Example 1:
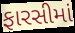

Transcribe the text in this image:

ફારસીમાં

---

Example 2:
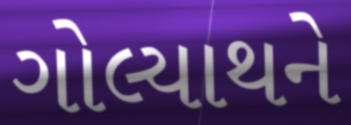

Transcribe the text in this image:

ગોલ્યાથને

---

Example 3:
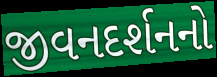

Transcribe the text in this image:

જીવનદર્શનનો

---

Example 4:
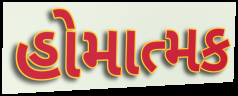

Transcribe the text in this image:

હોમાત્મક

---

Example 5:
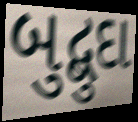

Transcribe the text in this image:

બુદ્બુદા